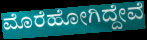
ಮೊರೆಹೋಗಿದ್ದೇವೆ